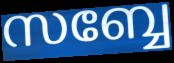
സബ്ബേ